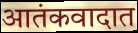
आतंकवादात